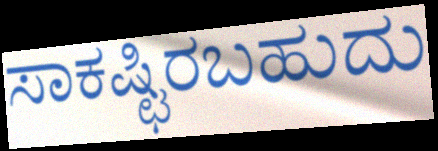
ಸಾಕಷ್ಟಿರಬಹುದು